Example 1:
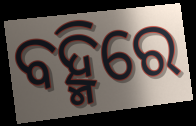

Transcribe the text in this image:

ବହ୍ମିରେ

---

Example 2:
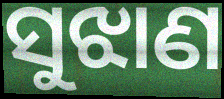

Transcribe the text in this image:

ସୁଝାଣ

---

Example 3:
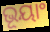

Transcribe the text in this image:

ଭୂୟାଂ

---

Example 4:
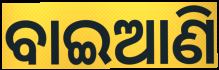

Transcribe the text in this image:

ବାଇଆଣି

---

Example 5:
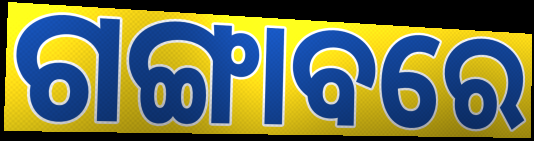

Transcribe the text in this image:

ଗଙ୍ଗାବରେ